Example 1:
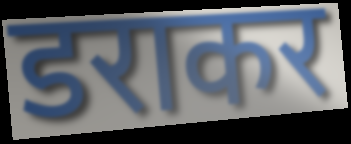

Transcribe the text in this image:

डराकर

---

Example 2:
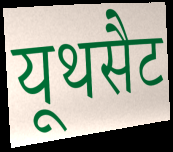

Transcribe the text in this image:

यूथसैट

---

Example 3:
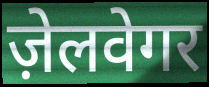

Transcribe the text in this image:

ज़ेलवेगर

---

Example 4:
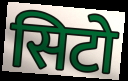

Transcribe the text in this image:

सिटो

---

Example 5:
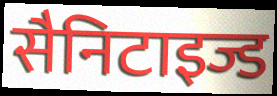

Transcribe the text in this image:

सैनिटाइज्ड